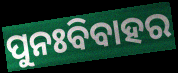
ପୁନଃବିବାହର